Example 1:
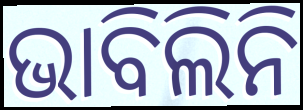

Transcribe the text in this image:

ଭାବିଲିନି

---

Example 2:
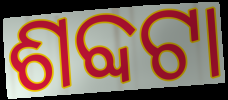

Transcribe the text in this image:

ଶବ୍ଦଟା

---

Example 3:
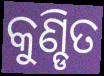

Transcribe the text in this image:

କୁଣ୍ଡିତ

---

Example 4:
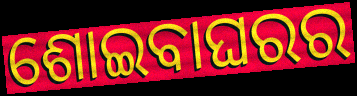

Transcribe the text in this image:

ଶୋଇବାଘରର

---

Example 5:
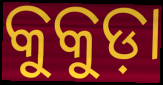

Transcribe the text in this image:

କୁକୁଡ଼ା